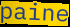
paine